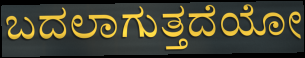
ಬದಲಾಗುತ್ತದೆಯೋ